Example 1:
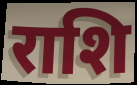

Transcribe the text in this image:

राशि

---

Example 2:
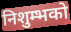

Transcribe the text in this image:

निशुम्भको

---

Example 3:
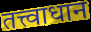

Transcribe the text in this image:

तत्त्वाधान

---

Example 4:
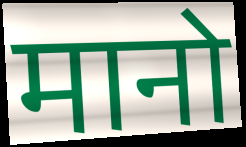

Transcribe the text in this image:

मानो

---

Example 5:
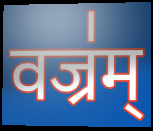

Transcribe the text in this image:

वज्र॑म्